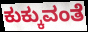
ಕುಕ್ಕುವಂತೆ